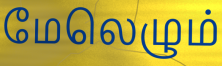
மேலெழும்